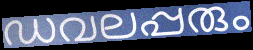
ഡവലപ്പരും